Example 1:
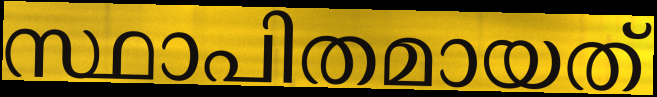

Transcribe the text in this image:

സ്ഥാപിതമായത്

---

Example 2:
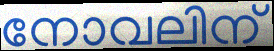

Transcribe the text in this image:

നോവലിന്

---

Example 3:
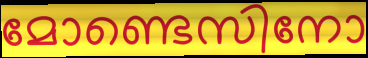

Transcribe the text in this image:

മോണ്ടെസിനോ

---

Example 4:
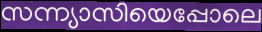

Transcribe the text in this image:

സന്ന്യാസിയെപ്പോലെ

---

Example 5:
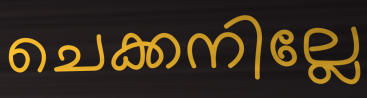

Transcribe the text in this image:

ചെക്കനില്ലേ